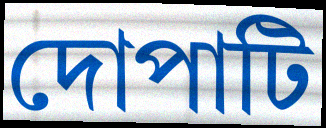
দোপাটি